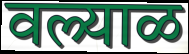
वल्याळ